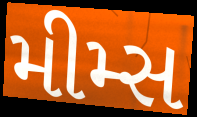
મીમ્સ